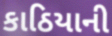
કાઠિયાની